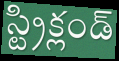
స్ట్రిక్లండ్